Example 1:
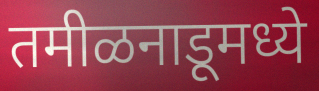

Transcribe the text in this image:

तमीळनाडूमध्ये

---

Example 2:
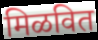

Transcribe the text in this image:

मिळवित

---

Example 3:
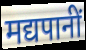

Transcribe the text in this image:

मद्यपानीं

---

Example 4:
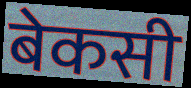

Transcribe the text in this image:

बेकसी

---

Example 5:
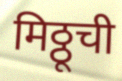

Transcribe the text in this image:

मिठ्ठूची